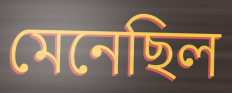
মেনেছিল